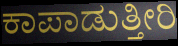
ಕಾಪಾಡುತ್ತೀರಿ